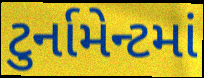
ટુર્નામેન્ટમાં